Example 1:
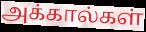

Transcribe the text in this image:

அக்கால்கள்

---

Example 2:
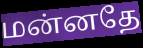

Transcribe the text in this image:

மன்னதே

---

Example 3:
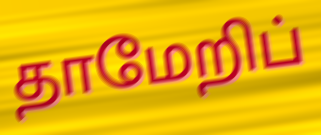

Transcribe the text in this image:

தாமேறிப்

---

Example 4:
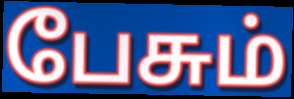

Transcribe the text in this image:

பேசும்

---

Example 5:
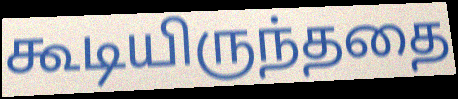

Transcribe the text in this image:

கூடியிருந்ததை